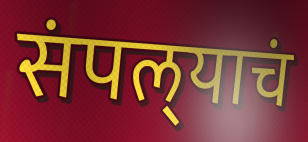
संपल्याचं